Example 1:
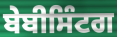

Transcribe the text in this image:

ਬੇਬੀਸਿੰਟਗ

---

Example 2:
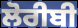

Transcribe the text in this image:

ਲੋਰੀਬੀ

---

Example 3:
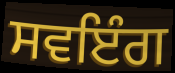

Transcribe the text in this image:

ਸਵਇੰਗ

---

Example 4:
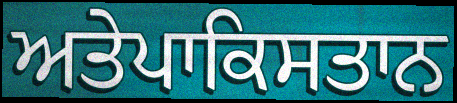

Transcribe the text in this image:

ਅਤੇਪਾਕਿਸਤਾਨ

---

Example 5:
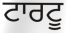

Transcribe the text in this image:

ਟਾਰਟੂ